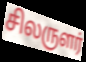
சிலருளர்